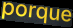
porque